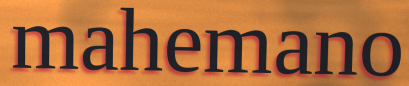
mahemano